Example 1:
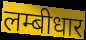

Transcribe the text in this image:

लम्बीधार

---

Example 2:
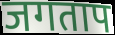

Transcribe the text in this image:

जगताप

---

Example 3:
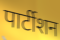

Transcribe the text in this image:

पार्टीशन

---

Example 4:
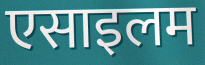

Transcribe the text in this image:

एसाइलम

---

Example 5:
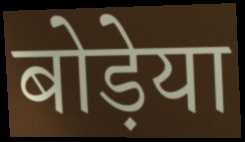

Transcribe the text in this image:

बोड़ेया